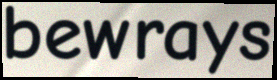
bewrays